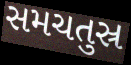
સમચતુસ્ર